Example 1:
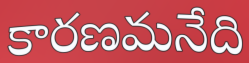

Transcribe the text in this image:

కారణమనేది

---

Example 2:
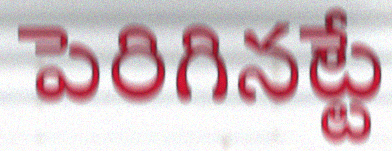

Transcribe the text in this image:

పెరిగినట్టే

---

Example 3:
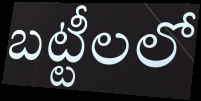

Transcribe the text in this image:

బట్టీలలో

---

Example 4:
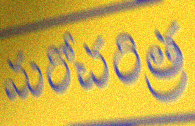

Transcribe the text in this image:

మరోచరిత్ర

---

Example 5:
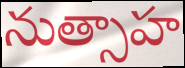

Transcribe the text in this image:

నుత్సాహ